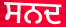
ਸਨਦ